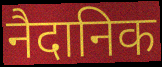
नैदानिक